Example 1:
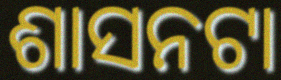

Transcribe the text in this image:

ଶାସନଟା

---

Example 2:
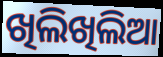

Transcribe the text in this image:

ଖିଲିଖିଲିଆ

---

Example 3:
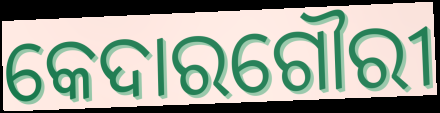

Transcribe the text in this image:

କେଦାରଗୌରୀ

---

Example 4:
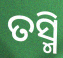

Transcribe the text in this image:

ତସ୍ମି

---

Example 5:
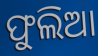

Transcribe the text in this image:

ଫୁଲିଆ